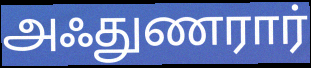
அஃதுணரார்